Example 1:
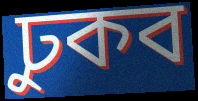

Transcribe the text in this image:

ঢুকব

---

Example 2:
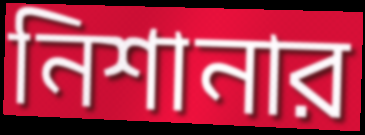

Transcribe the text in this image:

নিশানার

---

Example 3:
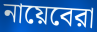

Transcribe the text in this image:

নায়েবেরা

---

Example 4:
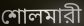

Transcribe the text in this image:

শোলমারী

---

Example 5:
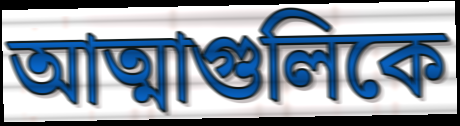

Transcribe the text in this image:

আত্মাগুলিকে